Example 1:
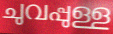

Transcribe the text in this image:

ചുവപ്പുള്ള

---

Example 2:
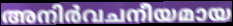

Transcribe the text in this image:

അനിർവചനീയമായ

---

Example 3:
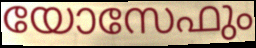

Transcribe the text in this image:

യോസേഫും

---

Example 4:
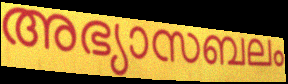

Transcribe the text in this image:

അഭ്യാസബലം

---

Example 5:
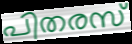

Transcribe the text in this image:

പിതരസ്